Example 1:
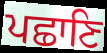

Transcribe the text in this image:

ਪਛਾਣਿ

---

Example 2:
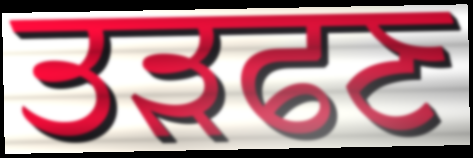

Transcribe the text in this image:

ਤੜਫਣ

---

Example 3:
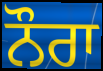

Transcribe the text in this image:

ਨੌਰਾ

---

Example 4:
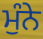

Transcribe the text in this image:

ਮੁੰਨੇ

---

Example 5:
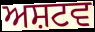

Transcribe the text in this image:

ਅਸ਼ਟਵ